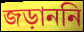
জড়াননি